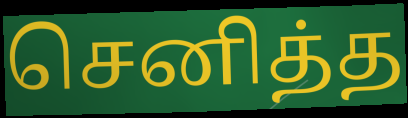
செனித்த